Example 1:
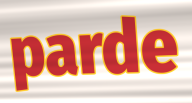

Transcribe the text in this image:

parde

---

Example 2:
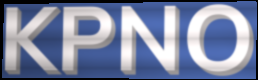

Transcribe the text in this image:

KPNO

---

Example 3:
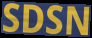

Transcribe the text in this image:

SDSN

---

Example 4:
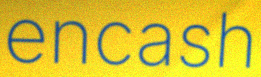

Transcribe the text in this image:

encash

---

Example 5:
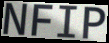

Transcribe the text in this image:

NFIP